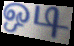
ஒடி